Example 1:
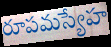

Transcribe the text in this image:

రూపమస్యేహ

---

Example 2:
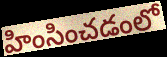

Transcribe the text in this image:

హింసించడంలో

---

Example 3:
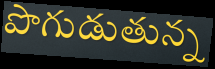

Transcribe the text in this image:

పొగుడుతున్న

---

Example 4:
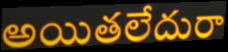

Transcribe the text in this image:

అయితలేదురా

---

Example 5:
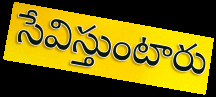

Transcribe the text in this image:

సేవిస్తుంటారు